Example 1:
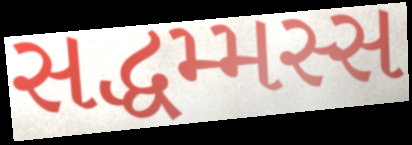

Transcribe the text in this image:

સદ્ધમ્મસ્સ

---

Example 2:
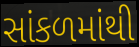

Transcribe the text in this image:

સાંકળમાંથી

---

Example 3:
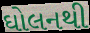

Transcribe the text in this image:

ઘોલનથી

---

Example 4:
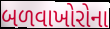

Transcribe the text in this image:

બળવાખોરોના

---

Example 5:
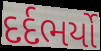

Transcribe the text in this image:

દર્દભર્યો